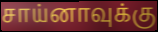
சாய்னாவுக்கு